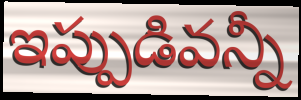
ఇప్పుడివన్నీ